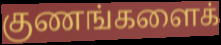
குணங்களைக்